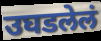
उघडलेलं